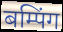
बम्पिंग